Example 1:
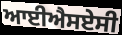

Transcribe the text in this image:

ਆਈਐਸਏਸੀ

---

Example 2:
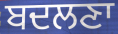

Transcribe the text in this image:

ਬਦਲਣਾ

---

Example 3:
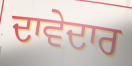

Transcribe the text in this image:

ਦਾਵੇਦਾਰ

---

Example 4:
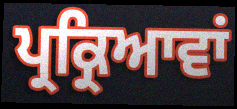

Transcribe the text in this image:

ਪ੍ਰਕ੍ਰਿਆਵਾਂ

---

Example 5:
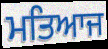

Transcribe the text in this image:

ਮਤਿਆਜ